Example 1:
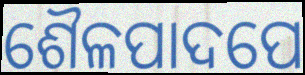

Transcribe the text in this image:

ଶୈଳପାଦପେ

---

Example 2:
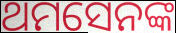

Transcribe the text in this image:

ଥମସେନଙ୍କ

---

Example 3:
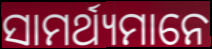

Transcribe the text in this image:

ସାମର୍ଥ୍ୟମାନେ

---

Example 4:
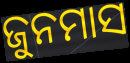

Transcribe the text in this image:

ଜୁନମାସ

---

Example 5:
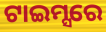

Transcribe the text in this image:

ଟାଇମ୍ସରେ